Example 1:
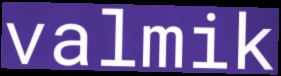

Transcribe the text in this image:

valmik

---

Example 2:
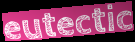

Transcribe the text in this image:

eutectic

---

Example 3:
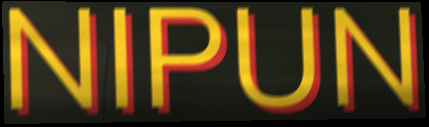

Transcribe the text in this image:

NIPUN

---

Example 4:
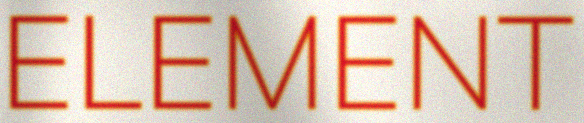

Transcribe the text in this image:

ELEMENT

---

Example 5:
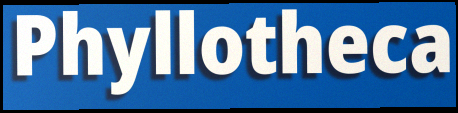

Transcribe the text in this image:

Phyllotheca